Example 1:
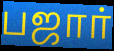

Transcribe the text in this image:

பஜார்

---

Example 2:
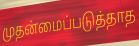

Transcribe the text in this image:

முதன்மைப்படுத்தாத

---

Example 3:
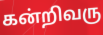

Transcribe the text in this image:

கன்றிவரு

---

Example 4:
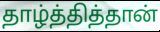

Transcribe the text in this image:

தாழ்த்தித்தான்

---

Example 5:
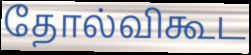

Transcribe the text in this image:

தோல்விகூட